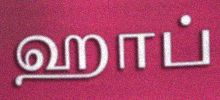
ஹாப்